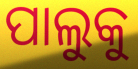
ପାଲୁକୁ